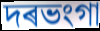
দৰভংগা